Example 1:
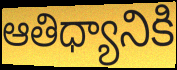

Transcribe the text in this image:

ఆతిధ్యానికి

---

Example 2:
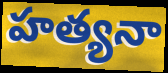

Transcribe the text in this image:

హత్యనా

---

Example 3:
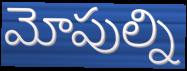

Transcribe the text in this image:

మోపుల్ని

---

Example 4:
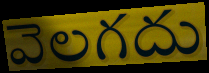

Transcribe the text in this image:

వెలగదు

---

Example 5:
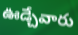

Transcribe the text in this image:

ఊడ్చేవారు